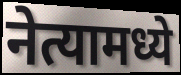
नेत्यामध्ये